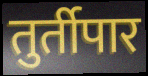
तुर्तीपार